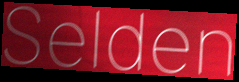
Selden